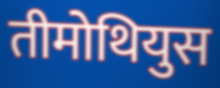
तीमोथियुस